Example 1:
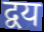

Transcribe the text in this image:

द्वय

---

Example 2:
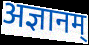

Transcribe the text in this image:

अज्ञानम्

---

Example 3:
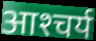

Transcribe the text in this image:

आश्चर्य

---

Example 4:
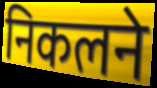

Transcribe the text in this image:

निकलने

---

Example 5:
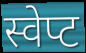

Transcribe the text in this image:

स्वेप्ट